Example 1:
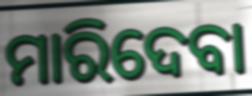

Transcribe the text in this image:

ମାରିଦେବା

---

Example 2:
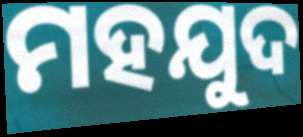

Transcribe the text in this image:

ମହଯୁଦ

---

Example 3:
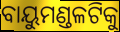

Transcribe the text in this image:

ବାୟୁମଣ୍ଡଳଟିକୁ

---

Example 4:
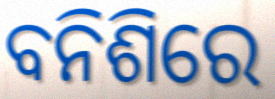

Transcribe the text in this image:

ବନିଶିରେ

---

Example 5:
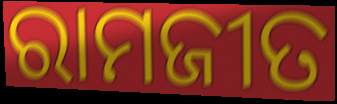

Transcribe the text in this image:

ରାମଜୀତ